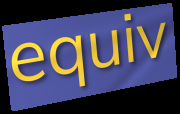
equiv